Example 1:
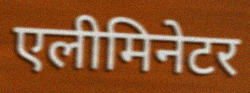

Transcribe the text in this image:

एलीमिनेटर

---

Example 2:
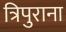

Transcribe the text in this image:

त्रिपुराना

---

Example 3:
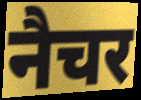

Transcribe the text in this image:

नैचर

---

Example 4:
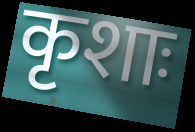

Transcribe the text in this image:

कृशाः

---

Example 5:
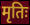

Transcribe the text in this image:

मृतिः